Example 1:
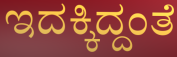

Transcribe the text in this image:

ಇದಕ್ಕಿದ್ದಂತೆ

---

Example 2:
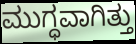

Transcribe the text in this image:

ಮುಗ್ಧವಾಗಿತ್ತು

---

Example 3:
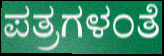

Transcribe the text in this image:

ಪತ್ರಗಳಂತೆ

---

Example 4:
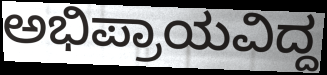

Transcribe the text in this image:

ಅಭಿಪ್ರಾಯವಿದ್ದ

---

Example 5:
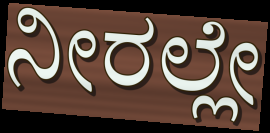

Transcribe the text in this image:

ನೀರಲ್ಲೇ